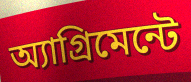
অ্যাগ্রিমেন্টে